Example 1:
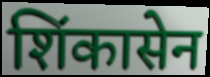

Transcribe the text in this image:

शिंकासेन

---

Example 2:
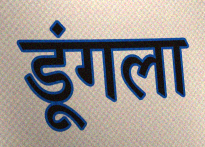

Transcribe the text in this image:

डूंगला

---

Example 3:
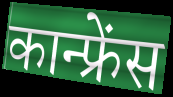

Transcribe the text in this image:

कान्फ्रेंस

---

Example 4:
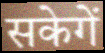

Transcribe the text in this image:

सकेगें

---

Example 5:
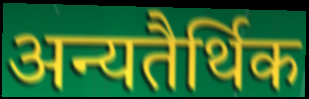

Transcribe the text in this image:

अन्यतैर्थिक